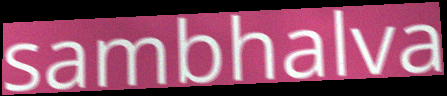
sambhalva